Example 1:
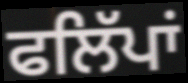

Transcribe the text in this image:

ਫਲਿੱਪਾਂ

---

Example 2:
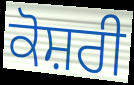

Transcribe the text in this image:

ਕੋਸ਼ਰੀ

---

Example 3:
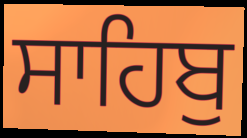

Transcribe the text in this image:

ਸਾਹਿਬੁ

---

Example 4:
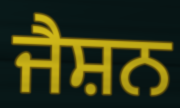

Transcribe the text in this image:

ਜੈਸ਼ਨ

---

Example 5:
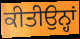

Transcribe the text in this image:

ਕੀਤੀਉਨ੍ਹਾਂ